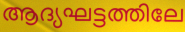
ആദ്യഘട്ടത്തിലേ